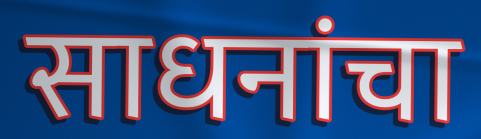
साधनांचा